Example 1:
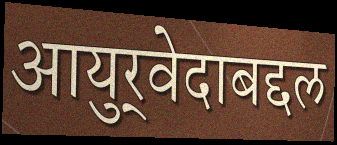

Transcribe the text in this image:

आयुर्वेदाबद्दल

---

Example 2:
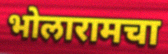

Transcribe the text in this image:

भोलारामचा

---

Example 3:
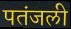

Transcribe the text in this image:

पतंजली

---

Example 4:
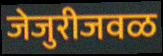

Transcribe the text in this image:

जेजुरीजवळ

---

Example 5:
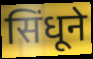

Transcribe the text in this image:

सिंधूने